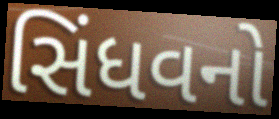
સિંધવનો